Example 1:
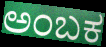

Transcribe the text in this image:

ಅಂಬಕ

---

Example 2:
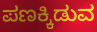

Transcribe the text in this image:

ಪಣಕ್ಕಿಡುವ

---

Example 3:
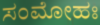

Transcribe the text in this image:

ಸಂಮೋಹಃ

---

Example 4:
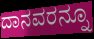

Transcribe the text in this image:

ದಾನವರನ್ನೂ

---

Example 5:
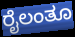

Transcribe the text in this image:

ರೈಲಂತೂ